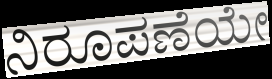
ನಿರೂಪಣೆಯೇ